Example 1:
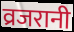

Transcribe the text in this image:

व्रजरानी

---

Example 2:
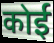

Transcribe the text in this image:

कोई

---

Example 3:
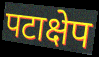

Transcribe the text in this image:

पटाक्षेप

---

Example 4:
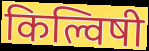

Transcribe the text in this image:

किल्विषी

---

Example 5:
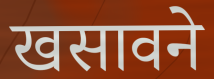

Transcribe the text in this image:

खसावने